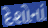
દેશોનાં